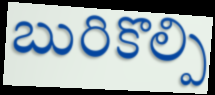
బురికొల్పి